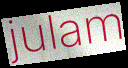
julam